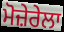
ਮੋਜ਼ੇਰੇਲਾ